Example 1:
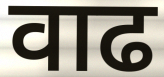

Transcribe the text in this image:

वाढ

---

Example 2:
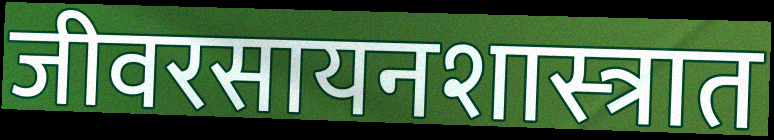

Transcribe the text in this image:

जीवरसायनशास्त्रात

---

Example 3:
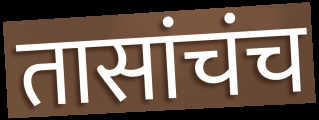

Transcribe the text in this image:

तासांचंच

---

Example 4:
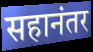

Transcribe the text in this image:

सहानंतर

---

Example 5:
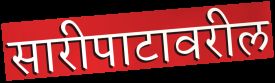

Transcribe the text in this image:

सारीपाटावरील